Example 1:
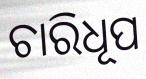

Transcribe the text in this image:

ଚାରିଧୂପ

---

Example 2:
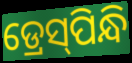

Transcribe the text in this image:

ଡ୍ରେସ୍‌ପିନ୍ଧି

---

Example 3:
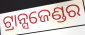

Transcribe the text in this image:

ଟ୍ରାନ୍ସଜେଣ୍ଡର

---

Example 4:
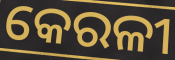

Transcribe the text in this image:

କେରଳୀ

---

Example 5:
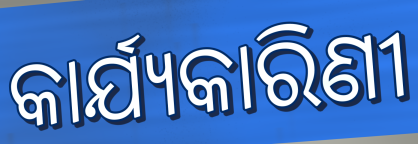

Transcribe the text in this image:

କାର୍ଯ୍ୟକାରିଣୀ